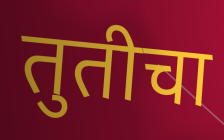
तुतीचा